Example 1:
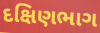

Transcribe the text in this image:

દક્ષિણભાગ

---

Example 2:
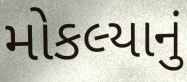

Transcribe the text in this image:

મોકલ્યાનું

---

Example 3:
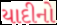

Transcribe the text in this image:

યાદીનો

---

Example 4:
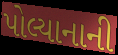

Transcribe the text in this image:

પોલ્યાનાની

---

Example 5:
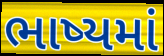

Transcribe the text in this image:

ભાષ્યમાં